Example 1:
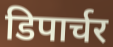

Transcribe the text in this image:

डिपार्चर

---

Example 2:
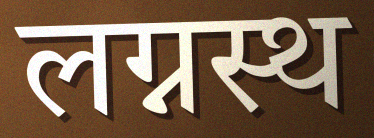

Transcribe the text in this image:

लग्नस्थ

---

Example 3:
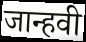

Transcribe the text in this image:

जान्हवी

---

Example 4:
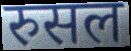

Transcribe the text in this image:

रुसल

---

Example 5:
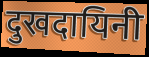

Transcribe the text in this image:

दुखदायिनी